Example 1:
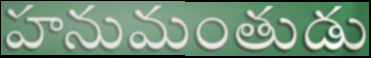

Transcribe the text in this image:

హనుమంతుడు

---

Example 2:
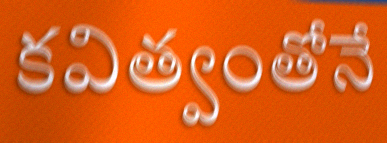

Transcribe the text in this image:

కవిత్వంతోనే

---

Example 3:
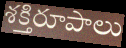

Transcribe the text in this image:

శక్తిరూపాలు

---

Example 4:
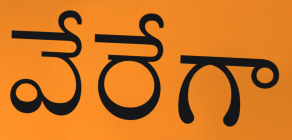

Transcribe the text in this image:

వేరేగా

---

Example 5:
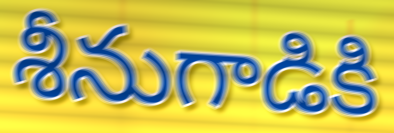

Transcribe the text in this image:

శీనుగాడికి